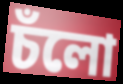
চঁলো